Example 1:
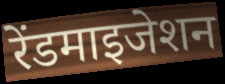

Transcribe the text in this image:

रेंडमाइजेशन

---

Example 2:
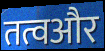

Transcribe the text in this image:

तत्वऔर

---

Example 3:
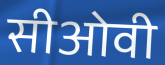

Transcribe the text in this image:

सीओवी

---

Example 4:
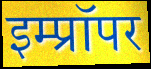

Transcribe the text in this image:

इम्प्रॉपर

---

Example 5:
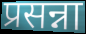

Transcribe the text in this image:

प्रसन्ना